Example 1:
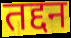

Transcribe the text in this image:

तद्दन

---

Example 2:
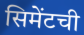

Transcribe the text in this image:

सिमेंटची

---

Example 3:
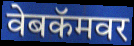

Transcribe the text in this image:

वेबकॅमवर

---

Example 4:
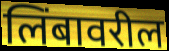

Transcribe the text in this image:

लिंबावरील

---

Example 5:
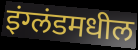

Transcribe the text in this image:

इंग्‍लंडमधील